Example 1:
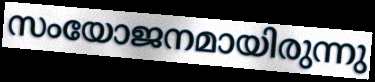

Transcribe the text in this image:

സംയോജനമായിരുന്നു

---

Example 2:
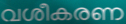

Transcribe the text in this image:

വശീകരണ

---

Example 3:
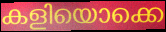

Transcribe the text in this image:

കളിയൊക്കെ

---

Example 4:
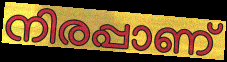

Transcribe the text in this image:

നിരപ്പാണ്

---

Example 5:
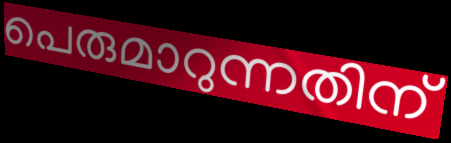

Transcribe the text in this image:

പെരുമാറുന്നതിന്